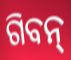
ଗିବନ୍